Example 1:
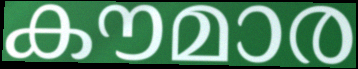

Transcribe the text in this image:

കൗമാര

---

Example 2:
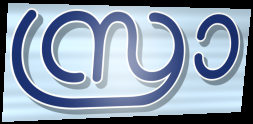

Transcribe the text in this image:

സ്രാ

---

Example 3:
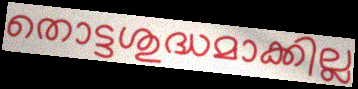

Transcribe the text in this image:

തൊട്ടശുദ്ധമാക്കില്ല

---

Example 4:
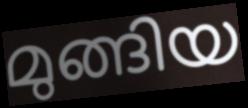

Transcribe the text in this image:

മുങ്ങിയ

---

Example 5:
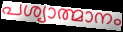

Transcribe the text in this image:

പശ്യാത്മാനം